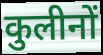
कुलीनों